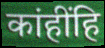
कांहींहि